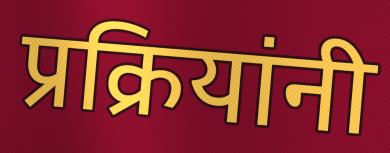
प्रक्रियांनी